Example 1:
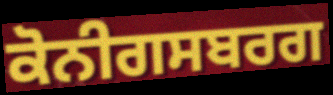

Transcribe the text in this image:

ਕੋਨੀਗਸਬਰਗ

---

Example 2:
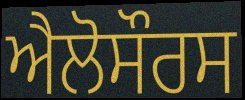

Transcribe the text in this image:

ਐਲੋਸੌਰਸ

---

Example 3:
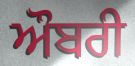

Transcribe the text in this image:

ਔਬਰੀ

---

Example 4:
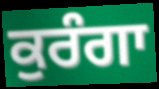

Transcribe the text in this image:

ਕੁਰੰਗਾ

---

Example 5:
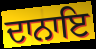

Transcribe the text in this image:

ਦਾਨਾਇ